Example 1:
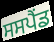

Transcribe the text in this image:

ਸਸਪੈੰਡ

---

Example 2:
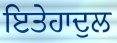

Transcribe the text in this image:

ਇਤੇਹਾਦੁਲ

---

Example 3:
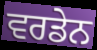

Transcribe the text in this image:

ਵਰਡੇਨ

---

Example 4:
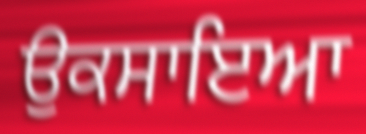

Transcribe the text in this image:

ਉਕਸਾਇਆ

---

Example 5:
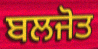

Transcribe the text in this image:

ਬਲਜੋਤ